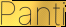
Panti